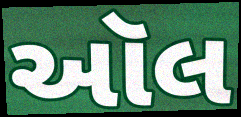
ઑલ